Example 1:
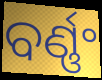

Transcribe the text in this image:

ବର୍ଣ୍ଣଂ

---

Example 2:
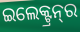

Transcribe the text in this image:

ଇଲେକ୍ଟ୍ରନ୍‌ର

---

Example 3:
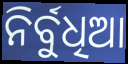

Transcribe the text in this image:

ନିର୍ବୁଧିଆ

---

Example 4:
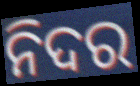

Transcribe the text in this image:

ନିଦର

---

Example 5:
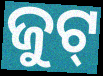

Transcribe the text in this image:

ଜୁଟ୍